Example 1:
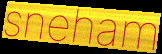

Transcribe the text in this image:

sneham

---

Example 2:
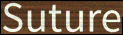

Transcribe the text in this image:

Suture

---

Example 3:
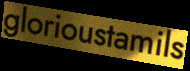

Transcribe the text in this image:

glorioustamils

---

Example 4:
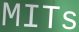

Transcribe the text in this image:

MITs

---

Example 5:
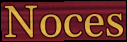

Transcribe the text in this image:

Noces